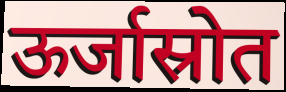
ऊर्जास्रोत